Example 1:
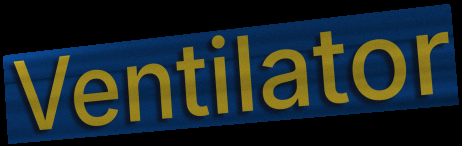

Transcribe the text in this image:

Ventilator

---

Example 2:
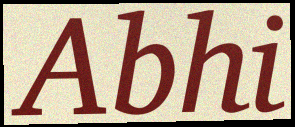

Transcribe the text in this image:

Abhi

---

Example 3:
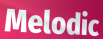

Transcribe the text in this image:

Melodic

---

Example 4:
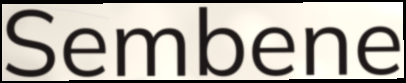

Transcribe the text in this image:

Sembene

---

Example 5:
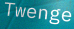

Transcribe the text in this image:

Twenge